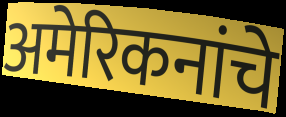
अमेरिकनांचे